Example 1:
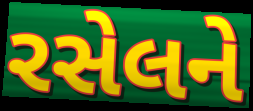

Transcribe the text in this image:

રસેલને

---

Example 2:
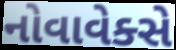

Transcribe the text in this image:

નોવાવેક્સે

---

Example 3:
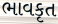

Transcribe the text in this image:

ભાવકૃત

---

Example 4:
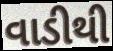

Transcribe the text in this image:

વાડીથી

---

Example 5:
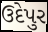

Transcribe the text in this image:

ઉદેપુર